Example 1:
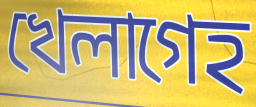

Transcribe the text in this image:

খেলাগেহ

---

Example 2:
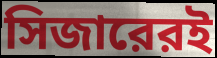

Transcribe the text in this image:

সিজারেরই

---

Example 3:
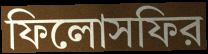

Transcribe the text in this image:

ফিলোসফির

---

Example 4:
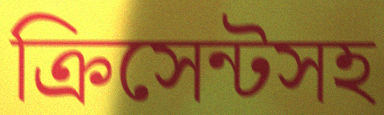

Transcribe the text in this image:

ক্রিসেন্টসহ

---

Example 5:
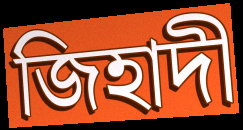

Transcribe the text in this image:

জিহাদী